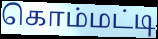
கொம்மட்டி